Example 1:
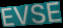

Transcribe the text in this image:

EVSE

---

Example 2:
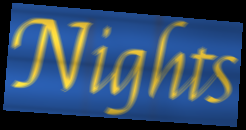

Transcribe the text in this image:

Nights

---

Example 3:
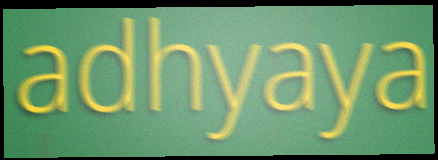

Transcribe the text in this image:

adhyaya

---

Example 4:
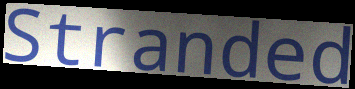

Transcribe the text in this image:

Stranded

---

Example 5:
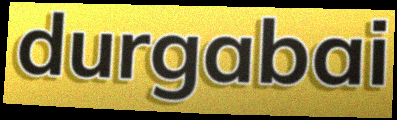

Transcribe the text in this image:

durgabai